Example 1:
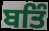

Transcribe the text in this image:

ਬਤਿੰ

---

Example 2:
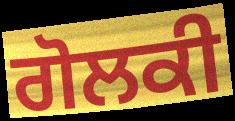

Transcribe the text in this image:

ਗੋਲਕੀ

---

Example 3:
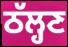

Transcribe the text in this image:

ਠੱਲ੍ਹਣ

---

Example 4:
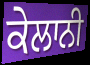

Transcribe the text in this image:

ਕੇਲਾਨੀ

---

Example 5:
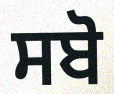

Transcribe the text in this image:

ਸਬੋ